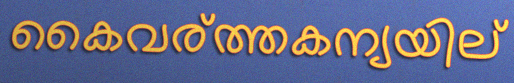
കൈവര്ത്തകന്യയില്